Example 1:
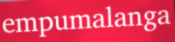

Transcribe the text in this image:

empumalanga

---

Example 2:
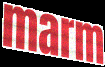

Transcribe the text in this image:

marm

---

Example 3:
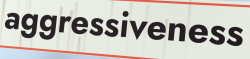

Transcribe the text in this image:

aggressiveness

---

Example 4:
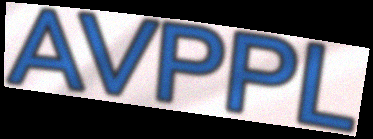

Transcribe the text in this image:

AVPPL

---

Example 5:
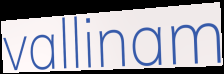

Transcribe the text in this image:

vallinam